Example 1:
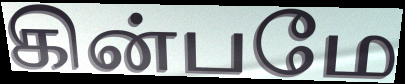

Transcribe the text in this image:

கின்பமே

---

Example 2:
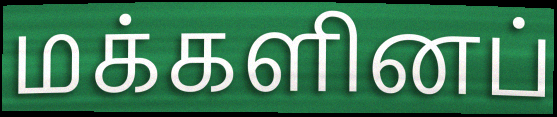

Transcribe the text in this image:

மக்களினப்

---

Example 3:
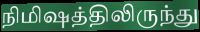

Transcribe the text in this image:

நிமிஷத்திலிருந்து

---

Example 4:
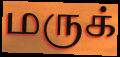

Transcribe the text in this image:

மருக்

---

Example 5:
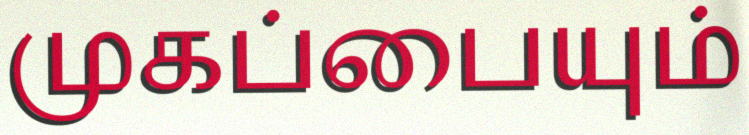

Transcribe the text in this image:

முகப்பையும்